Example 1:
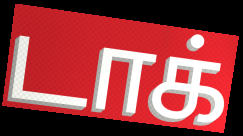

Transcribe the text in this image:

டாக்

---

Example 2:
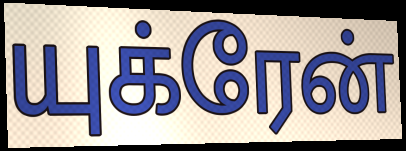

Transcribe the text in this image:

யுக்ரேன்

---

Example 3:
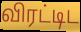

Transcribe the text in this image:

விரட்டிட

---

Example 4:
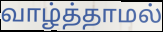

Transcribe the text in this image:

வாழ்த்தாமல்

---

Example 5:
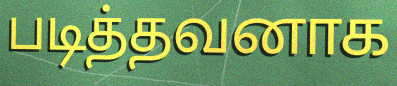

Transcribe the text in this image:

படித்தவனாக